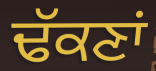
ਢੱਕਣਾਂ